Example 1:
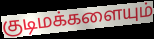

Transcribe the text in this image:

குடிமக்களையும்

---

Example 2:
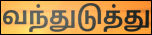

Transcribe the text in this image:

வந்துடுத்து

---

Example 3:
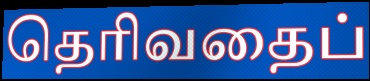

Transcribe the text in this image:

தெரிவதைப்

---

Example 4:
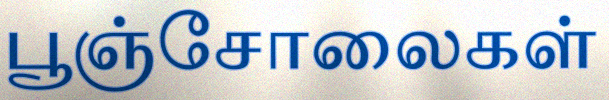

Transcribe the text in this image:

பூஞ்சோலைகள்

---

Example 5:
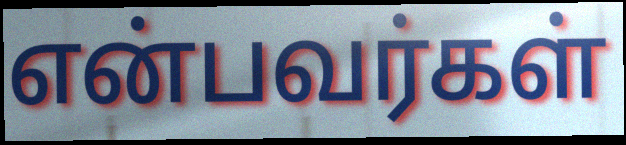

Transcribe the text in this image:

என்பவர்கள்